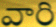
వారి